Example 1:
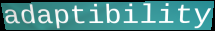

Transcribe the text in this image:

adaptibility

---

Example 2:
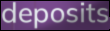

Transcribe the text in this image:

deposits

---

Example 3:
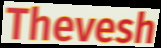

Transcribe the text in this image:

Thevesh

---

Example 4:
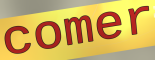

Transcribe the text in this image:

comer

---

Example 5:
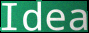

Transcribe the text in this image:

Idea